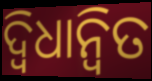
ଦ୍ଵିଧାନ୍ୱିତ